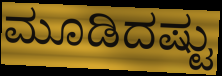
ಮೂಡಿದಷ್ಟು